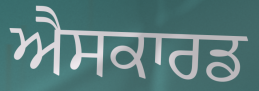
ਐਸਕਾਰਡ